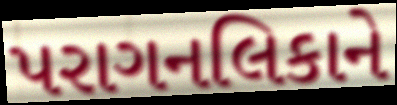
પરાગનલિકાને